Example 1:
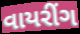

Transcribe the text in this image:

વાયરીંગ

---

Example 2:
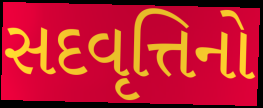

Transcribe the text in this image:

સદવૃત્તિનો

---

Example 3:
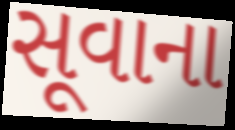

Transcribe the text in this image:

સૂવાના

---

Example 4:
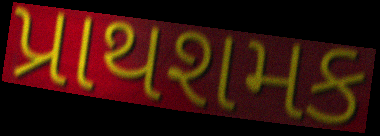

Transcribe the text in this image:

પ્રાથશમક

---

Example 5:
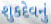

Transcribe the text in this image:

શુકદેવનું